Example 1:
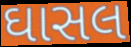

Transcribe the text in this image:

ઘાસલ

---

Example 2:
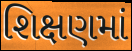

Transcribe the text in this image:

શિક્ષણમાં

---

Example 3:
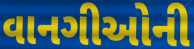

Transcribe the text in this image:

વાનગીઓની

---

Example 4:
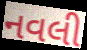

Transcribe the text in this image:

નવલી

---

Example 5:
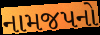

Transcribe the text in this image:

નામજપનો